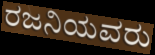
ರಜನಿಯವರು